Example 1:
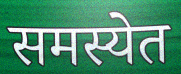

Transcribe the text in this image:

समस्येत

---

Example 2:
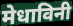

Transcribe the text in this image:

मेधाविनी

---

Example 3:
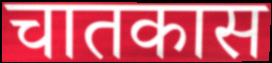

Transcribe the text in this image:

चातकास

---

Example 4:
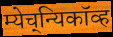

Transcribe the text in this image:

म्येच्‌न्यिकॉव्ह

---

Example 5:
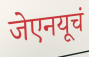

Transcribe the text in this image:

जेएनयूचं